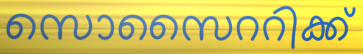
സൊസൈററിക്ക്